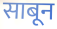
साबून